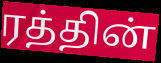
ரத்தின்